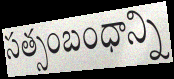
సత్సంబంధాన్ని